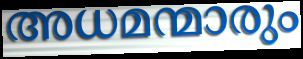
അധമന്മാരും